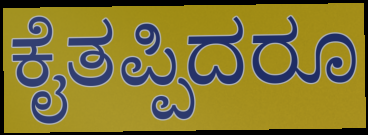
ಕೈತಪ್ಪಿದರೂ